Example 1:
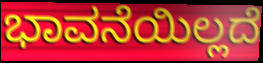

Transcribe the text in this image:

ಭಾವನೆಯಿಲ್ಲದೆ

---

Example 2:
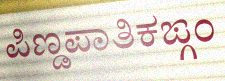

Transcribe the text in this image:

ಪಿಣ್ಡಪಾತಿಕಙ್ಗಂ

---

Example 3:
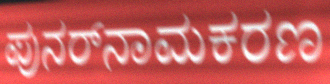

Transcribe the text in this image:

ಪುನರ್‌ನಾಮಕರಣ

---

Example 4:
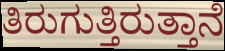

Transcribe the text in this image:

ತಿರುಗುತ್ತಿರುತ್ತಾನೆ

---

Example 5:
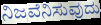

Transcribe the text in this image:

ನಿಜವೆನಿಸುವುದು